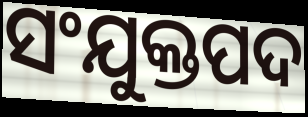
ସଂଯୁକ୍ତପଦ